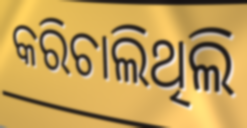
କରିଚାଲିଥିଲି